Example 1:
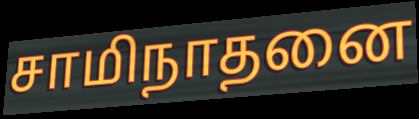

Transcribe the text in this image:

சாமிநாதனை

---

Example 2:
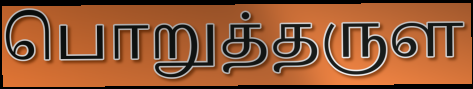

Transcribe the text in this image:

பொறுத்தருள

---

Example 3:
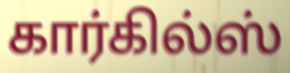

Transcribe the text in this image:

கார்கில்ஸ்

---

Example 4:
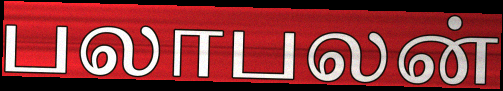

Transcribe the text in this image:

பலாபலன்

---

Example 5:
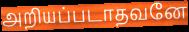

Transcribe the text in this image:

அறியப்படாதவனே